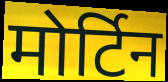
मोर्टिन